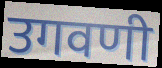
उगवणी